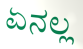
ಏನಲ್ಲ